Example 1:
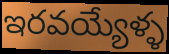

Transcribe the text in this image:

ఇరవయ్యేళ్ళ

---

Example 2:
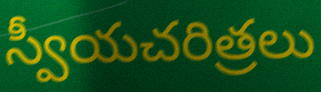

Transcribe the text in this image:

స్వీయచరిత్రలు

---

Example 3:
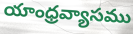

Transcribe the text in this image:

యాంధ్రవ్యాసము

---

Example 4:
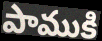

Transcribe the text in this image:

పాముకి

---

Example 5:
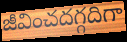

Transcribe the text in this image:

జీవించదగ్గదిగా